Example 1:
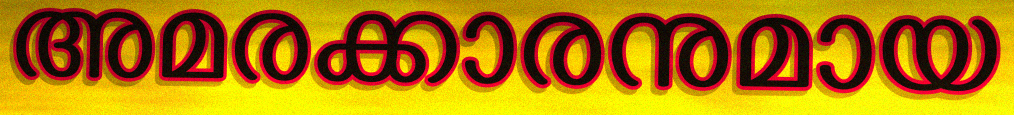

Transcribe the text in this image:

അമരക്കാരനുമായ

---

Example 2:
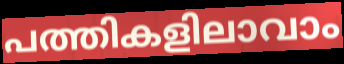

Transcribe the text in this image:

പത്തികളിലാവാം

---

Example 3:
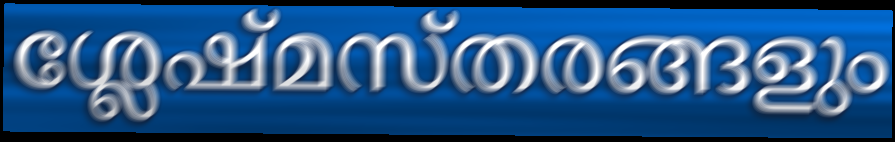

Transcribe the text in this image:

ശ്ലേഷ്മസ്തരങ്ങളും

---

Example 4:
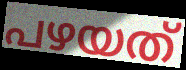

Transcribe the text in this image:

പഴയത്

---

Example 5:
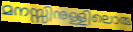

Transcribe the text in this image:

മനസ്സിനുള്ളിലൊരു